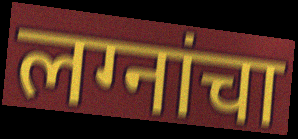
लग्नांचा